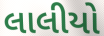
લાલીયો